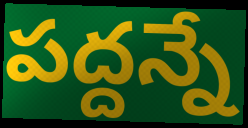
పద్దన్నే